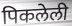
पिकलेली